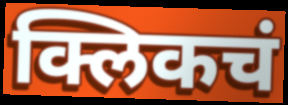
क्लिकचं